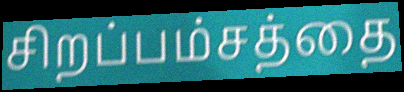
சிறப்பம்சத்தை